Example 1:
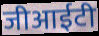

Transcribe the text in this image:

जीआईटी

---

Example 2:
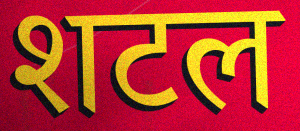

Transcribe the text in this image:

शटल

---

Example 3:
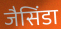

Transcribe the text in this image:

जैसिंडा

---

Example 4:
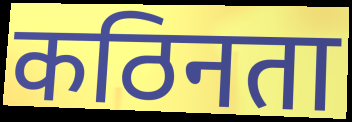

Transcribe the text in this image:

कठिनता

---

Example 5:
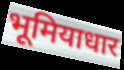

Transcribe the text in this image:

भूमियाधार